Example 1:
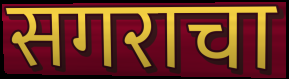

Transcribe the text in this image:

सगराचा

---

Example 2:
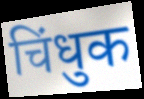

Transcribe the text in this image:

चिंधुक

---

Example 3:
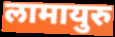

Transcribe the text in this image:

लामायुरु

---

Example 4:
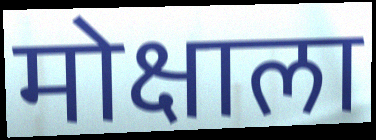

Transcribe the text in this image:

मोक्षाला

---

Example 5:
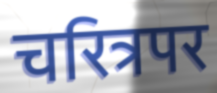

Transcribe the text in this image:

चरित्रपर